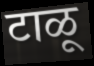
टाळू